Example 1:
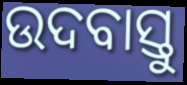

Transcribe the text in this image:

ଉଦବାସ୍ତୁ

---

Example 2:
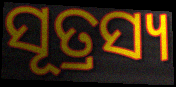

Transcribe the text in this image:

ସୂତ୍ରସ୍ୟ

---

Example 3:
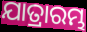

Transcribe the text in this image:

ଯାତ୍ରାରମ୍ଭ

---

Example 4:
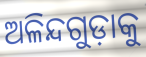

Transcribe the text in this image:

ଅଳିନ୍ଦଗୁଡ଼ାକୁ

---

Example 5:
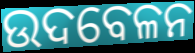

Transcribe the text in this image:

ଉଦବେଳନ